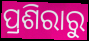
ପ୍ରଶିରାରୁ